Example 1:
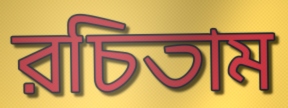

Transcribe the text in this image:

রচিতাম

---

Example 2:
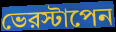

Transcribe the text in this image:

ভেরস্টাপেন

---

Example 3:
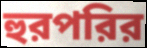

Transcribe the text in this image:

হুরপরির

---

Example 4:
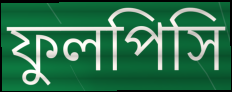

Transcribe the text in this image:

ফুলপিসি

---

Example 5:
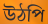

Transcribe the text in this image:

উঠপি